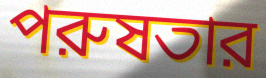
পরুষতার